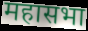
महासभा